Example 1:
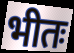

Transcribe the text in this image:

भीतः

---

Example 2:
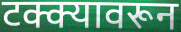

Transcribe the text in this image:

टक्क्यावरून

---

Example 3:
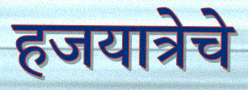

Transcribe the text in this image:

हजयात्रेचे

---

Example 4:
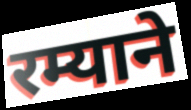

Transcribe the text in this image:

रम्याने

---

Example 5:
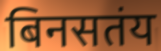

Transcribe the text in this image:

बिनसतंय